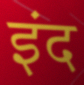
इंद